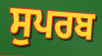
ਸੁਪਰਬ